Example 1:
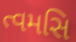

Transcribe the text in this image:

ત્વમસિ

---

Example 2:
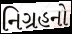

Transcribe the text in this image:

નિગ્રહનો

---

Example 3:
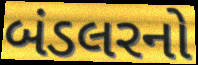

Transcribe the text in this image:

બંડલરનો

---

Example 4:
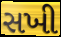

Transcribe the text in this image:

સખી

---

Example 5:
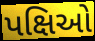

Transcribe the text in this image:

પક્ષિઓ